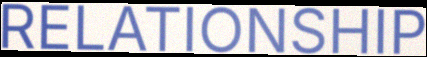
RELATIONSHIP